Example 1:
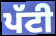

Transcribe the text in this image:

ਪੱਟੀ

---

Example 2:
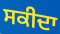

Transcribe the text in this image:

ਸਕੀਦਾ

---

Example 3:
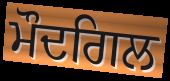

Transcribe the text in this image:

ਮੌਦਗਿਲ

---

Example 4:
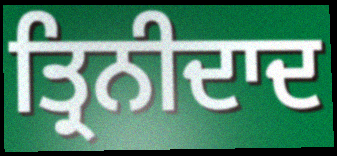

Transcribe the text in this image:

ਤ੍ਰਿਨੀਦਾਦ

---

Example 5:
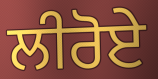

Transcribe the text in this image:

ਲੀਰੋਏ